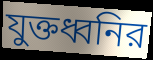
যুক্তধ্বনির